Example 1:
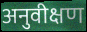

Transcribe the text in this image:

अनुवीक्षण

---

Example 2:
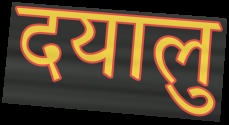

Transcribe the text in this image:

दयालु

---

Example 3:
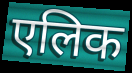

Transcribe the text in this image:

एलिक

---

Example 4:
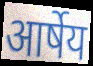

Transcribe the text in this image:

आर्षेय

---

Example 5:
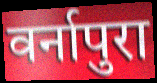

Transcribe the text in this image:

वर्नापुरा